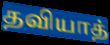
தவியாத்